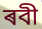
ৰবী